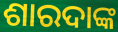
ଶାରଦାଙ୍କ